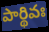
పార్థివః